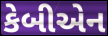
કેબીએન